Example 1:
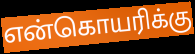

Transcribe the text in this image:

என்கொயரிக்கு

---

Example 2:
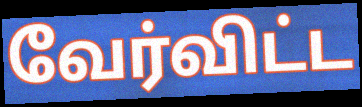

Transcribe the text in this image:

வேர்விட்ட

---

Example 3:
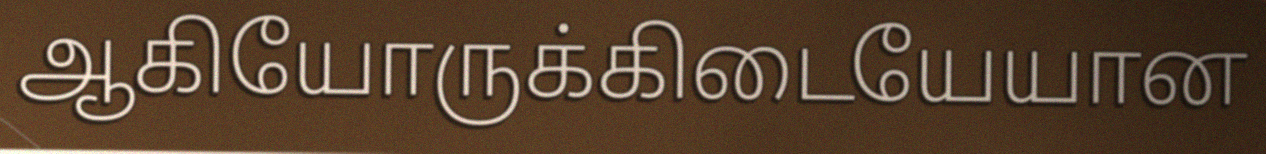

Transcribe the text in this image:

ஆகியோருக்கிடையேயான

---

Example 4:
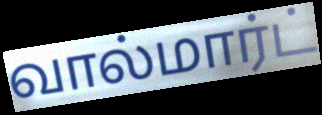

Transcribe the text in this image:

வால்மார்ட்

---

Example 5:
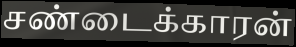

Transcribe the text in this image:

சண்டைக்காரன்